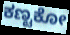
ಕಣ್ಟಕೋ